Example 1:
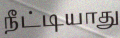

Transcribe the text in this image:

நீட்டியாது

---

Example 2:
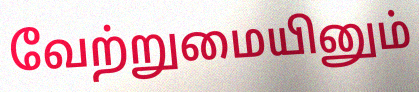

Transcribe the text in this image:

வேற்றுமையினும்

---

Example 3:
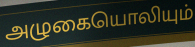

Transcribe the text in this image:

அழுகையொலியும்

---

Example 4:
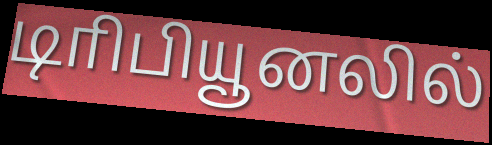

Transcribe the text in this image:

டிரிபியூனலில்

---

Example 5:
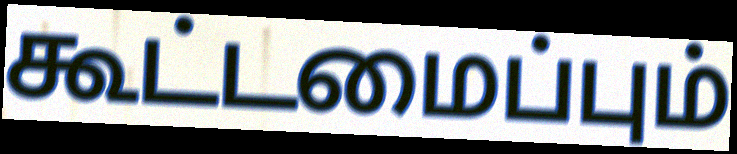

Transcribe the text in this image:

கூட்டமைப்பும்